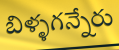
బిళ్ళగన్నేరు